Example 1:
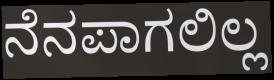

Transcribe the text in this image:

ನೆನಪಾಗಲಿಲ್ಲ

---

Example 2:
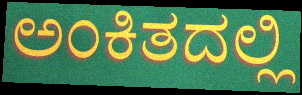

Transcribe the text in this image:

ಅಂಕಿತದಲ್ಲಿ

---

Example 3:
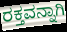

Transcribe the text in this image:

ರಕ್ತವನ್ನಾಗಿ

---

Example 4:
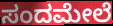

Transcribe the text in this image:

ಸಂದಮೇಲೆ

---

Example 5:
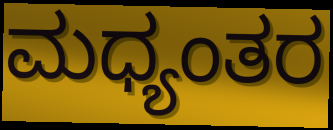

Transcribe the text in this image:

ಮಧ್ಯಂತರ